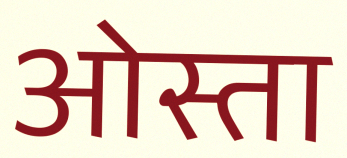
ओस्ता